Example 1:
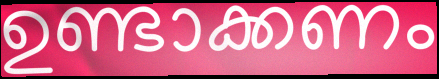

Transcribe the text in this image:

ഉണ്ടാക്കണം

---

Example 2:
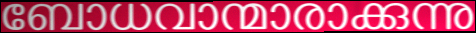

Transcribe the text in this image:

ബോധവാന്മാരാക്കുന്നു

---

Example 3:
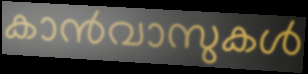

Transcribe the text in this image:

കാൻവാസുകൾ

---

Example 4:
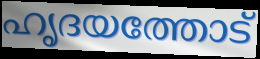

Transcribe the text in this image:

ഹൃദയത്തോട്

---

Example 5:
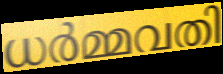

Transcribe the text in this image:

ധർമ്മവതി